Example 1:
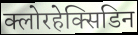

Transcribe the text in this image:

क्लोरहेक्सिडिन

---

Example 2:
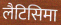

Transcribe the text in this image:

लैटिसिमा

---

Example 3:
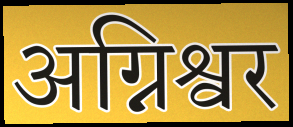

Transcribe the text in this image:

अग्निश्वर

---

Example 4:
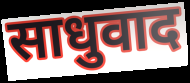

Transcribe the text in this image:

साधुवाद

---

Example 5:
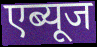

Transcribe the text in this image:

एब्यूज